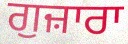
ਗੁਜ਼ਾਰਾ